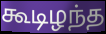
கூடிழந்த